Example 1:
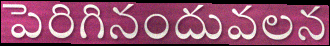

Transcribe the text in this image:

పెరిగినందువలన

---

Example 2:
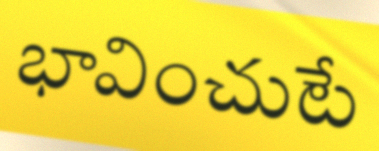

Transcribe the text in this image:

భావించుటే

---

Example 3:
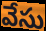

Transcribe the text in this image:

వేసు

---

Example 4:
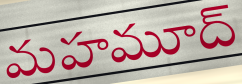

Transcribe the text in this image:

మహమూద్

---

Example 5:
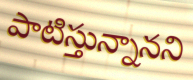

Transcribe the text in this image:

పాటిస్తున్నానని